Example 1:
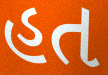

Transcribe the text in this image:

હત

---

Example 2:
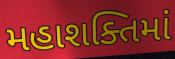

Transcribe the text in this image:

મહાશક્તિમાં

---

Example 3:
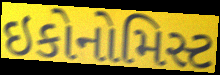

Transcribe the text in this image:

ઇકોનોમિસ્ટ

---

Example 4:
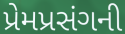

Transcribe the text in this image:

પ્રેમપ્રસંગની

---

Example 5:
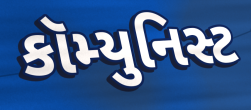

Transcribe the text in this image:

કૉમ્યુનિસ્ટ